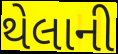
થેલાની